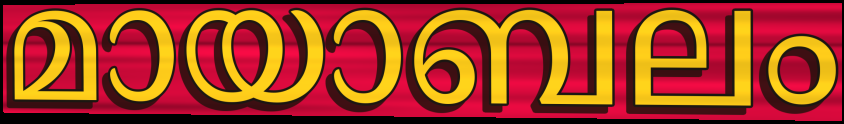
മായാബലം